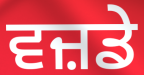
ਵਜ਼ਡੇ